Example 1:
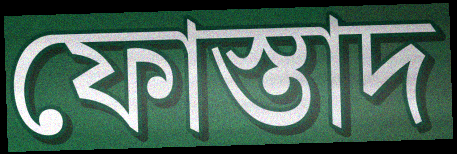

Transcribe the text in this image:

ফোস্তাদ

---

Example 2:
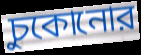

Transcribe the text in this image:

চুকোনোর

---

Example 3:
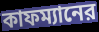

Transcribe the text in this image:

কাফম্যানের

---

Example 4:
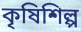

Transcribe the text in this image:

কৃষিশিল্প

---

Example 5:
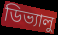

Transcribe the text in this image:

ডিভ্যালু